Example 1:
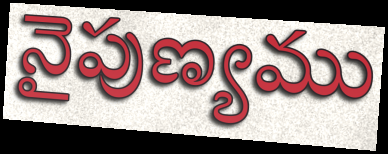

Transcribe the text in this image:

నైపుణ్యము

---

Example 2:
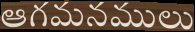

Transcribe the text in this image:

ఆగమనములు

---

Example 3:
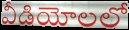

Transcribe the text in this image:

వీడియోలలో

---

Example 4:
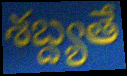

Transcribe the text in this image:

శబ్ద్యతే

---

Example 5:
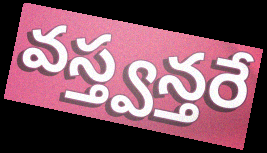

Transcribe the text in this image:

వస్త్వన్తరే